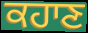
ਕਹਾਣ